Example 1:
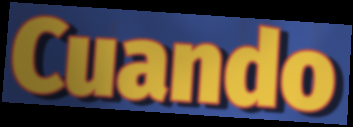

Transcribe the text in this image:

Cuando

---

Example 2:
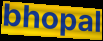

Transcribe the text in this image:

bhopal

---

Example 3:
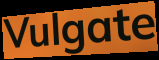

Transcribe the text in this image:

Vulgate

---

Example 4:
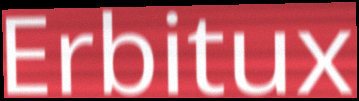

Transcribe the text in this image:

Erbitux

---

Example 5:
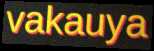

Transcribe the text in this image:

vakauya